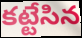
కట్టేసిన